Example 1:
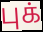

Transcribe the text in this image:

புக்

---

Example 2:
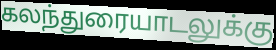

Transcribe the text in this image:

கலந்துரையாடலுக்கு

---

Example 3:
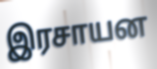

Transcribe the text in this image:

இரசாயன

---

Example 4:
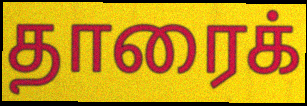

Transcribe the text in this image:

தாரைக்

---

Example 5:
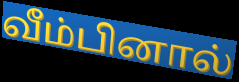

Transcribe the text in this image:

வீம்பினால்